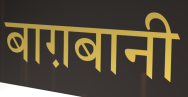
बाग़बानी